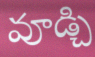
వూడ్చి